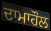
ਦਾਮਾਹੌਲ